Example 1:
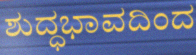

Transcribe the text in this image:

ಶುದ್ಧಭಾವದಿಂದ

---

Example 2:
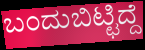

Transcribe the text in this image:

ಬಂದುಬಿಟ್ಟಿದ್ದೆ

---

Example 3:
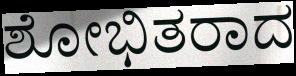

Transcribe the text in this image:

ಶೋಭಿತರಾದ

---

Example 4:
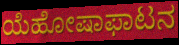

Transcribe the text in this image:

ಯೆಹೋಷಾಫಾಟನ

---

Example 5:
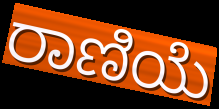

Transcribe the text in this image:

ರಾಣಿಯೆ